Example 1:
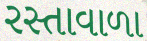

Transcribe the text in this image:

રસ્તાવાળા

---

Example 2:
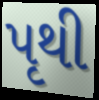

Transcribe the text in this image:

પૃથી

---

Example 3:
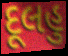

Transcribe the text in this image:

દૂલહુ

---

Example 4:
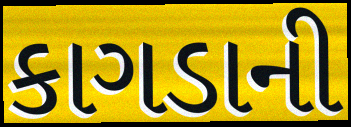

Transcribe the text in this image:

કાગડાની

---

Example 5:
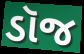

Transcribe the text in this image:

ડૉજ